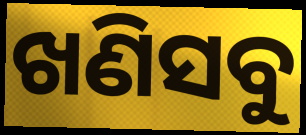
ଖଣିସବୁ